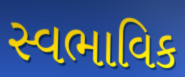
સ્વભાવિક